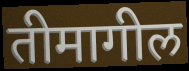
तीमागील